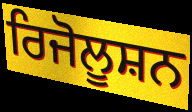
ਰਿਜੋਲੂਸ਼ਨ